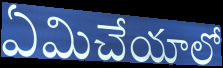
ఏమిచేయాలో